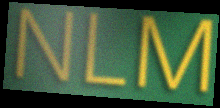
NLM